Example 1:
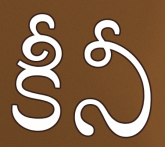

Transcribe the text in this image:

కీనీ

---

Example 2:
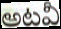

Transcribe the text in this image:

అటవీ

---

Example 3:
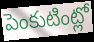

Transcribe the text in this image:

పెంకుటింట్లో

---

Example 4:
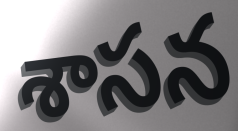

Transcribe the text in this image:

శాసన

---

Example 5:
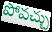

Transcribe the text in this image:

పోవచ్చు